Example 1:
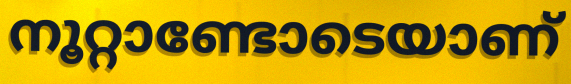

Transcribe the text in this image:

നൂറ്റാണ്ടോടെയാണ്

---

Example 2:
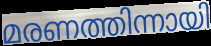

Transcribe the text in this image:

മരണത്തിന്നായി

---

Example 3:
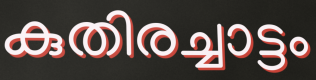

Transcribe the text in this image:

കുതിരച്ചാട്ടം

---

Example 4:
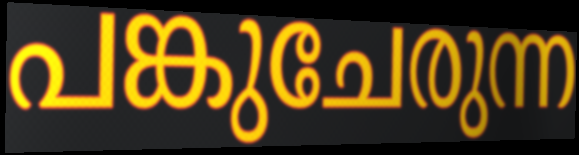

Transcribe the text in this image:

പങ്കുചേരുന്ന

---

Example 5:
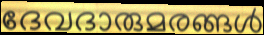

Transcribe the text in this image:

ദേവദാരുമരങ്ങൾ